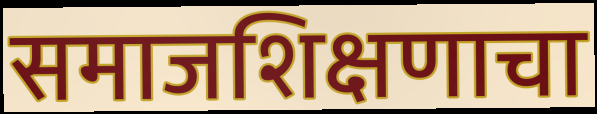
समाजशिक्षणाचा